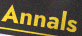
Annals